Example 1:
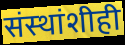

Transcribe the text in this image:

संस्थांशीही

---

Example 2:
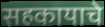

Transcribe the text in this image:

सहकायाचे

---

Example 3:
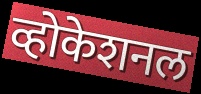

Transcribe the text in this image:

व्होकेशनल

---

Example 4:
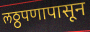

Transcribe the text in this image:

लठ्ठपणापासून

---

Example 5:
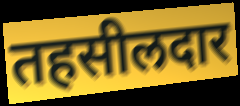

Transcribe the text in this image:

तहसीलदार